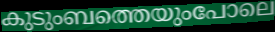
കുടുംബത്തെയുംപോലെ